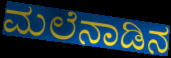
ಮಲೆನಾಡಿನ